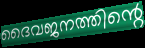
ദൈവജനത്തിന്റെ